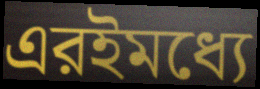
এরইমধ্যে